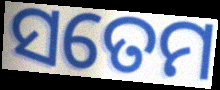
ସତେମ